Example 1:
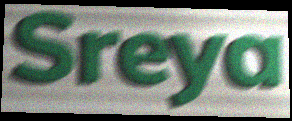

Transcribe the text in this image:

Sreya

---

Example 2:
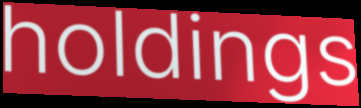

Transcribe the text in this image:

holdings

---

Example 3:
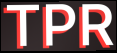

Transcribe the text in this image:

TPR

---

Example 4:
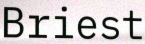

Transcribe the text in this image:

Briest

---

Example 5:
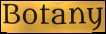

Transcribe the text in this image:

Botany